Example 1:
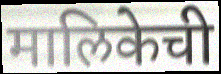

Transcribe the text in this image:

मालिकेची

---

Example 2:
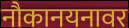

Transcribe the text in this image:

नौकानयनावर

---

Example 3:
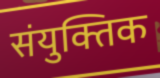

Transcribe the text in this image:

संयुक्‍तिक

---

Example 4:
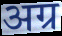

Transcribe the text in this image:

अग्र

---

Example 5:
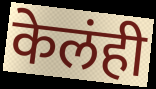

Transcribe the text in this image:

केलंही